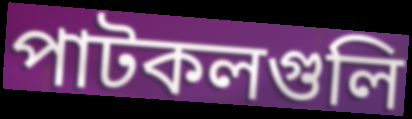
পাটকলগুলি